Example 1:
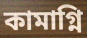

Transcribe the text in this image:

কামাগ্নি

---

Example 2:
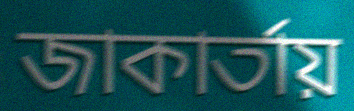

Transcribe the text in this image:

জাকার্তায়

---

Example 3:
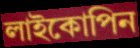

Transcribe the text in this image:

লাইকোপিন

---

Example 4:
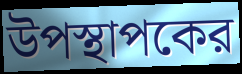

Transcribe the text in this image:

উপস্থাপকের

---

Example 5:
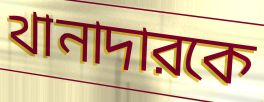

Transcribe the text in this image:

থানাদারকে